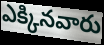
ఎక్కినవారు